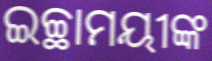
ଇଚ୍ଛାମୟୀଙ୍କ